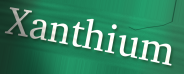
Xanthium